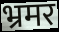
भ्रमर